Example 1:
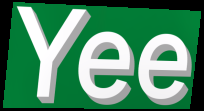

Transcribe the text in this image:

Yee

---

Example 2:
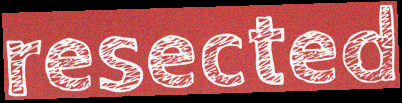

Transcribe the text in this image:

resected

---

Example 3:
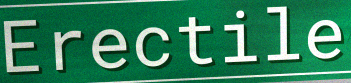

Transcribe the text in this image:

Erectile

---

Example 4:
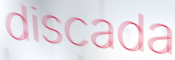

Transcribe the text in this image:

discada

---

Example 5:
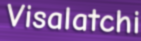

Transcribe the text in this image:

Visalatchi